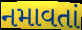
નમાવતાં